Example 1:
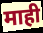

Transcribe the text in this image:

माही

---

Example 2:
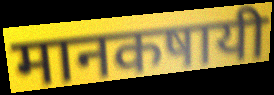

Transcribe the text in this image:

मानकषायी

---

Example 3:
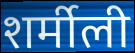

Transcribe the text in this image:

शर्मीली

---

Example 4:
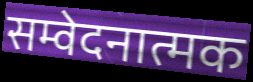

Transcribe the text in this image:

सम्वेदनात्मक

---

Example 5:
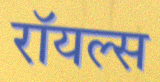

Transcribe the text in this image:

रॉयल्स